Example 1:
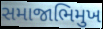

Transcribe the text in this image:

સમાજાભિમુખ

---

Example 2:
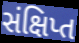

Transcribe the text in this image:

સંક્ષિપ્ત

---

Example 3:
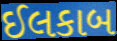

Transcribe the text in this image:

ઈલકાબ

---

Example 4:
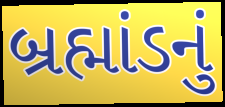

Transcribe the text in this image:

બ્રહ્માંડનું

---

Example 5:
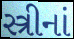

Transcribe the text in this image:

સ્ત્રીનાં